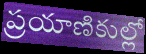
ప్రయాణికుల్లో